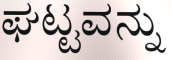
ಘಟ್ಟವನ್ನು